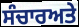
ਸੰਚਾਰਅਤੇ